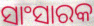
ସାଂସାରକ